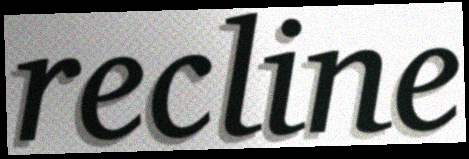
recline